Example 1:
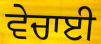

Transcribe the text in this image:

ਵੇਚਾਈ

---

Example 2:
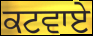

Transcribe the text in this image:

ਕਟਵਾਏ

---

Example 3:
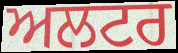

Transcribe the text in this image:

ਅਲਟਰ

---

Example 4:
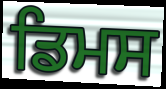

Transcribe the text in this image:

ਡਿਮਸ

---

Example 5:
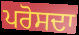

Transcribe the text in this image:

ਪਰੋਸਦਾ